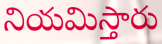
నియమిస్తారు